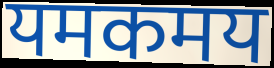
यमकमय